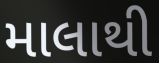
માલાથી